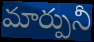
మార్పునీ